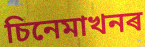
চিনেমাখনৰ